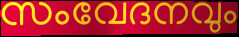
സംവേദനവും